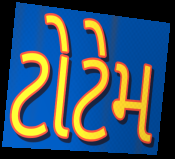
ટોટેમ